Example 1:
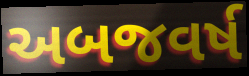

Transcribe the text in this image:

અબજવર્ષ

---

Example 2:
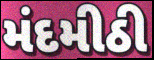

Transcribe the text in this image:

મંદમીઠી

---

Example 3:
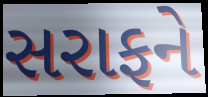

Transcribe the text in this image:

સરાફને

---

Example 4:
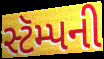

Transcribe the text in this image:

સ્ટૅમ્પની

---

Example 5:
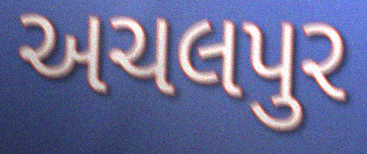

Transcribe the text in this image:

અચલપુર